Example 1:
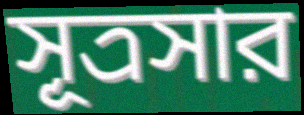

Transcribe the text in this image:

সূত্রসার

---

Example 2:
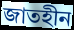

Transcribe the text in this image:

জাতহীন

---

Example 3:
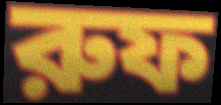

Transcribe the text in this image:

রুফ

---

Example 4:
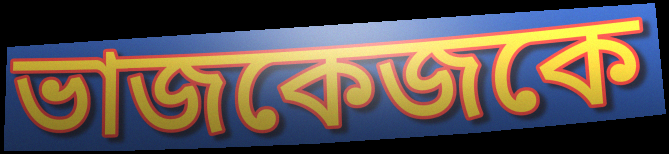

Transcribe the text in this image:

ভাজকেজকে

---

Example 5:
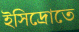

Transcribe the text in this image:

ইসিদ্রোতে